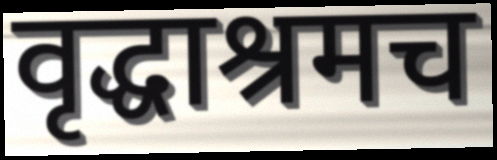
वृद्धाश्रमच